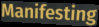
Manifesting